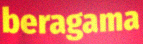
beragama